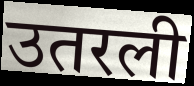
उतरली